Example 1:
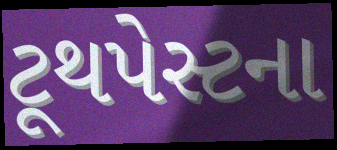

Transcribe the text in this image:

ટૂથપેસ્ટના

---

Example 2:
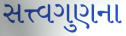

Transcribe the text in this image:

સત્ત્વગુણના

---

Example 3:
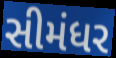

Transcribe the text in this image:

સીમંધર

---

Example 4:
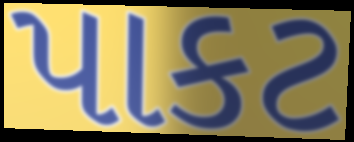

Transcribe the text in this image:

પાકટ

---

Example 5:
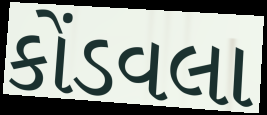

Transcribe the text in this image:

કોંડવલા